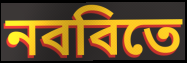
নববিতে